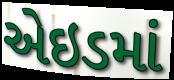
એઇડમાં